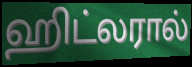
ஹிட்லரால்